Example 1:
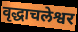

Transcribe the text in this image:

वृद्धाचलेश्वर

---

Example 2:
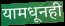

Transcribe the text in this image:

यामधूनही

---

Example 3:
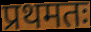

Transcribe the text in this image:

प्रथमतः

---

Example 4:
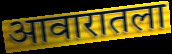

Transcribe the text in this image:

आवारातला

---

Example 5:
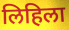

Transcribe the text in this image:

लिहिला